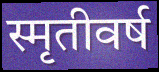
स्मृतीवर्ष